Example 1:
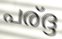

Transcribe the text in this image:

പര്ദ്ദ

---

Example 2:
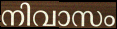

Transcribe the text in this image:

നിവാസം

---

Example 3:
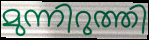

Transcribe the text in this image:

മുന്നിറുത്തി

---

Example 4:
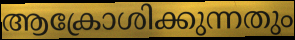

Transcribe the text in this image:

ആക്രോശിക്കുന്നതും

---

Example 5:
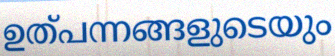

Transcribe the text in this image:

ഉത്പന്നങ്ങളുടെയും